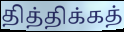
தித்திக்கத்